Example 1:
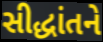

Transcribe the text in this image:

સીદ્ધાંતને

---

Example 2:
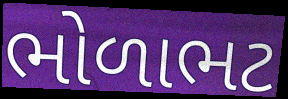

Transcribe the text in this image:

ભોળાભટ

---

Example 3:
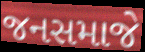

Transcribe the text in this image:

જનસમાજે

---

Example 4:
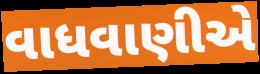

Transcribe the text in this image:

વાધવાણીએ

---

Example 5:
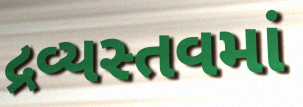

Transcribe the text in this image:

દ્રવ્યસ્તવમાં